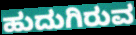
ಹುದುಗಿರುವ